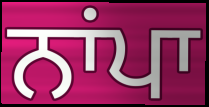
ਨਾਂਪਾ